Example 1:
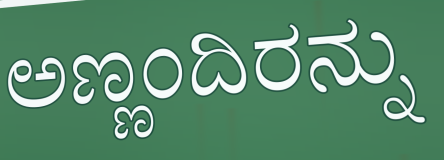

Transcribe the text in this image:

ಅಣ್ಣಂದಿರನ್ನು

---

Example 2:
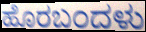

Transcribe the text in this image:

ಹೊರಬಂದಳು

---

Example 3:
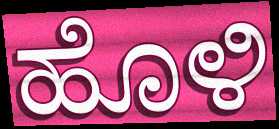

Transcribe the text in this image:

ಹೊಳಿ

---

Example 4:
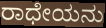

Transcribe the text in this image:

ರಾಧೇಯನು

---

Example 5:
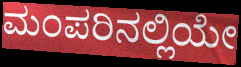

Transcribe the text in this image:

ಮಂಪರಿನಲ್ಲಿಯೇ